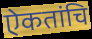
ऐकतांचि